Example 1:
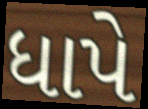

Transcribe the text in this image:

ધાપે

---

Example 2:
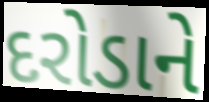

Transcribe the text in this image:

દરોડાને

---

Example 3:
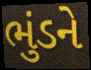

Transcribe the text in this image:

ભુંડને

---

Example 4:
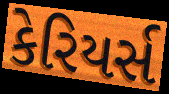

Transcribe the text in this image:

કેરિયર્સ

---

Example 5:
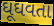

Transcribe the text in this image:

ઘૂઘવતા